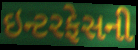
ઇન્ટરફેસની